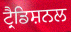
ਟ੍ਰੈਡਿਸ਼ਨਲ